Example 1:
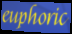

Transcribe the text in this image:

euphoric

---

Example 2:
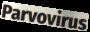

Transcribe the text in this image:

Parvovirus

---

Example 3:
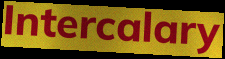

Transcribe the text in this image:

Intercalary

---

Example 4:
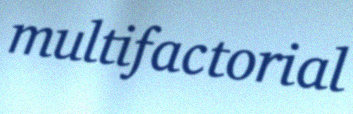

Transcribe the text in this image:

multifactorial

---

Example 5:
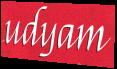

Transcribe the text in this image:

udyam